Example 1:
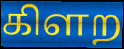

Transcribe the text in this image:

கிளற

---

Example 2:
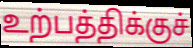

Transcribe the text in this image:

உற்பத்திக்குச்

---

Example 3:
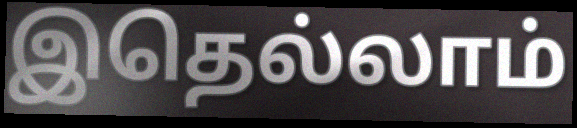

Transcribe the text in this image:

இதெல்லாம்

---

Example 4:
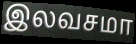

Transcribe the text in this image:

இலவசமா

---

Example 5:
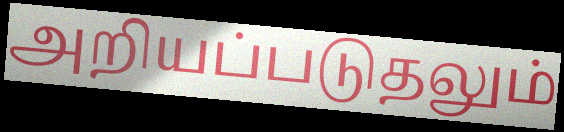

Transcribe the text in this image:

அறியப்படுதலும்